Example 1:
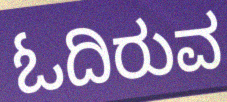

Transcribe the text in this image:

ಓದಿರುವ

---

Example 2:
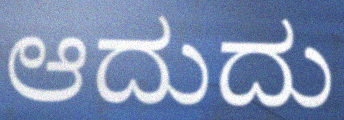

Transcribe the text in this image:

ಆದುದು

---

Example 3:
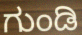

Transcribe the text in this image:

ಗುಂಡಿ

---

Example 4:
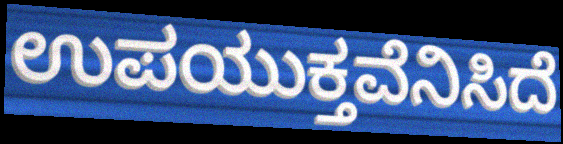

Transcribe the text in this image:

ಉಪಯುಕ್ತವೆನಿಸಿದೆ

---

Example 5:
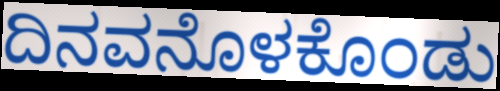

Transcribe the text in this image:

ದಿನವನೊಳಕೊಂಡು